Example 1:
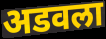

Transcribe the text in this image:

अडवला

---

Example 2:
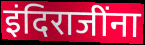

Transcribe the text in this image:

इंदिराजींना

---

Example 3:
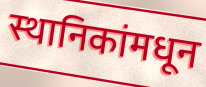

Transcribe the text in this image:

स्थानिकांमधून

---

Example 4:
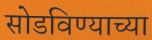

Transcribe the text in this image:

सोडविण्याच्या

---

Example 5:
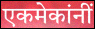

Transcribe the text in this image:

एकमेकांनीं